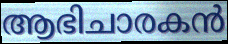
ആഭിചാരകൻ